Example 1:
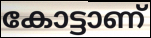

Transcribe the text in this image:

കോട്ടാണ്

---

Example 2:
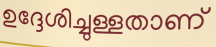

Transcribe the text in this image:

ഉദ്ദേശിച്ചുള്ളതാണ്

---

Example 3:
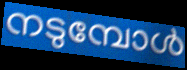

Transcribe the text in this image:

നടുമ്പോൾ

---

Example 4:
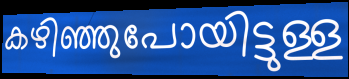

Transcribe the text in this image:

കഴിഞ്ഞുപോയിട്ടുള്ള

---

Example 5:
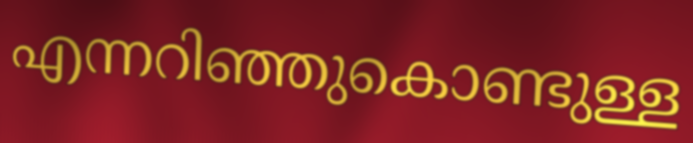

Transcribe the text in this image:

എന്നറിഞ്ഞുകൊണ്ടുള്ള